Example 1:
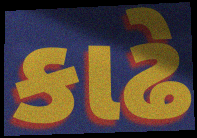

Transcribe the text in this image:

કાઢે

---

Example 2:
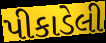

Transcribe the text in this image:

પીકાડેલી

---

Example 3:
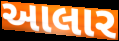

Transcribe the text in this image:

આલાર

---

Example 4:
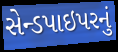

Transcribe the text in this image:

સેન્ડપાઇપરનું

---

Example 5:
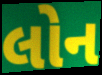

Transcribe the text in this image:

લોન